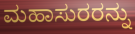
ಮಹಾಸುರರನ್ನು